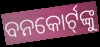
ବନକୋର୍ଟ୍‍ଙ୍କୁ